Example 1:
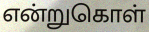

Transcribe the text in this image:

என்றுகொள்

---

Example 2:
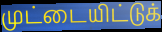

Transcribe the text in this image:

முட்டையிட்டுக்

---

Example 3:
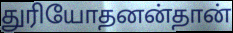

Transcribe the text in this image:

துரியோதனன்தான்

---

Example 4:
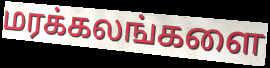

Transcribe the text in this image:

மரக்கலங்களை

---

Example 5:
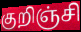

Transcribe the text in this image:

குறிஞ்சி